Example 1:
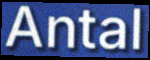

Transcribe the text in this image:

Antal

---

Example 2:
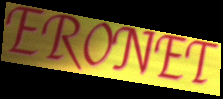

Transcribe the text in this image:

ERONET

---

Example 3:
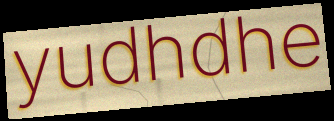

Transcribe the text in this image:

yudhdhe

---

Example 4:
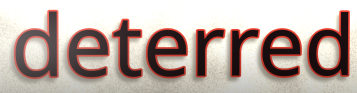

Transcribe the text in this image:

deterred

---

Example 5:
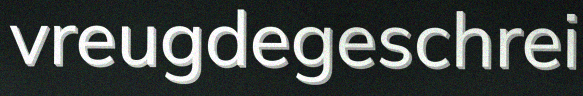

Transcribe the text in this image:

vreugdegeschrei